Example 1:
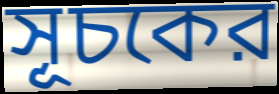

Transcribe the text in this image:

সূচকের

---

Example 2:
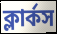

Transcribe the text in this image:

ক্লার্কস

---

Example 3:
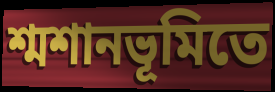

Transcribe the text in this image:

শ্মশানভূমিতে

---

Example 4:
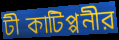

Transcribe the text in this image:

টীকাটিপ্পনীর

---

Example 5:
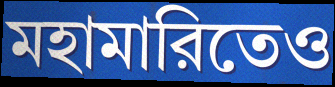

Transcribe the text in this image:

মহামারিতেও